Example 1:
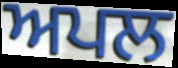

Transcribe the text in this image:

ਅਪਲ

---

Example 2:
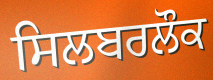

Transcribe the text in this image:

ਸਿਲਬਰਲੌਕ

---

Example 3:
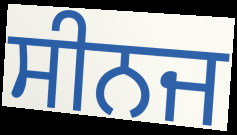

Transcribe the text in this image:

ਸੀਨਜ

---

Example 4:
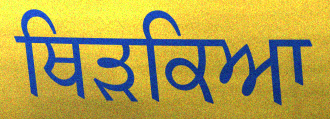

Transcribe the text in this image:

ਥਿੜਕਿਆ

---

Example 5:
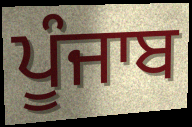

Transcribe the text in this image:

ਪੂੰਜਾਬ